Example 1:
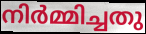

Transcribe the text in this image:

നിർമ്മിച്ചതു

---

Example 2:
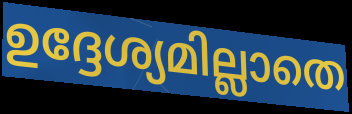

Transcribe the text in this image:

ഉദ്ദേശ്യമില്ലാതെ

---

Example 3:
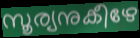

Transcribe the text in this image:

സൂര്യനുകീഴേ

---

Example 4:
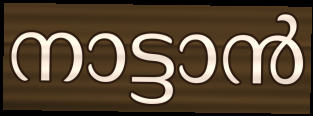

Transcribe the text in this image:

നാട്ടാൻ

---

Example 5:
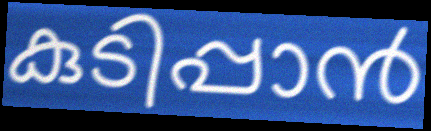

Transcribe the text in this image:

കുടിപ്പാൻ